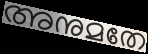
അനുമതേ